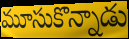
మూసుకొన్నాడు